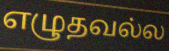
எழுதவல்ல